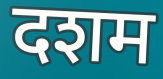
दशम